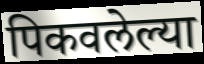
पिकवलेल्या